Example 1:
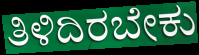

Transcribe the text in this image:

ತಿಳಿದಿರಬೇಕು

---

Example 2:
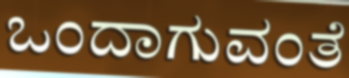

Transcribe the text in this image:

ಒಂದಾಗುವಂತೆ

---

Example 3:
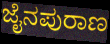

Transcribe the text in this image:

ಜೈನಪುರಾಣ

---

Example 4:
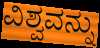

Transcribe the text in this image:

ವಿಶ್ವವನ್ನು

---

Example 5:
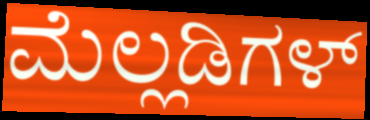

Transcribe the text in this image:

ಮೆಲ್ಲಡಿಗಳ್